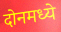
दोनमध्ये